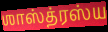
ஶாஸ்த்ரஸ்ய